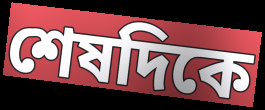
শেষদিকে